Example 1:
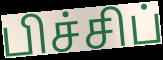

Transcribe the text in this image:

பிச்சிப்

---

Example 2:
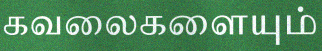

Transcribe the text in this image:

கவலைகளையும்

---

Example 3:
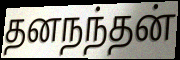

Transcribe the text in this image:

தனநந்தன்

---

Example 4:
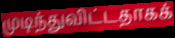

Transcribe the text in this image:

முடிந்துவிட்டதாகக்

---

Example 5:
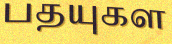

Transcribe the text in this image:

பதயுகள